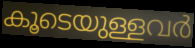
കൂടെയുള്ളവർ